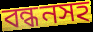
বন্ধনসহ